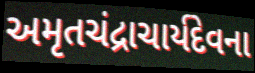
અમૃતચંદ્રાચાર્યદેવના